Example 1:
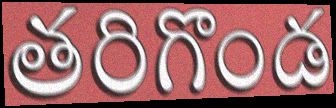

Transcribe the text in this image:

తరిగొండ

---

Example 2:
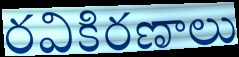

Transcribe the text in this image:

రవికిరణాలు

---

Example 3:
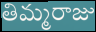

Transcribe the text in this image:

తిమ్మరాజు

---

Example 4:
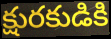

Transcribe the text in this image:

క్షురకుడికి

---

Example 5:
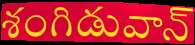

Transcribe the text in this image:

శంగిడువాన్